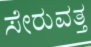
ಸೇರುವತ್ತ